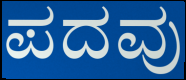
ಪದವು